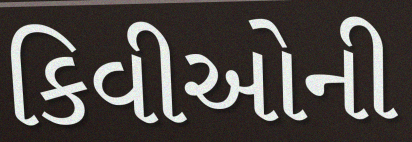
કિવીઓની